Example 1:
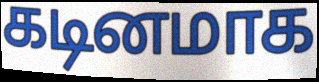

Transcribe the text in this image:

கடினமாக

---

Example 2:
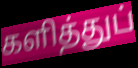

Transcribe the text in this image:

களித்துப்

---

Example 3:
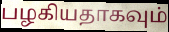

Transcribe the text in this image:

பழகியதாகவும்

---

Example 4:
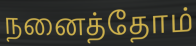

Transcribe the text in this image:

நனைத்தோம்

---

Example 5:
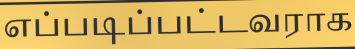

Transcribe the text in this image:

எப்படிப்பட்டவராக